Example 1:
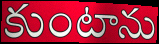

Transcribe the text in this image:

కుంటాను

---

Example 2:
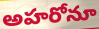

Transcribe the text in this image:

అహరోనూ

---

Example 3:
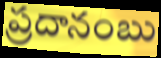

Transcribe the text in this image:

ప్రదానంబు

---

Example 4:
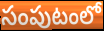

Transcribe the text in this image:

సంపుటంలో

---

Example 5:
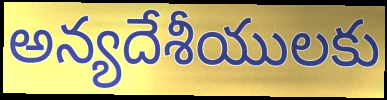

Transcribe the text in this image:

అన్యదేశీయులకు